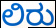
ಲಿರು